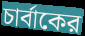
চার্বাকের